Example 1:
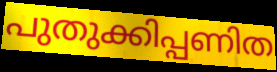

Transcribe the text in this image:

പുതുക്കിപ്പണിത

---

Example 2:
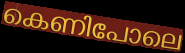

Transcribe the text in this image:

കെണിപോലെ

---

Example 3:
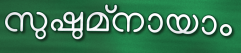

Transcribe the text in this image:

സുഷുമ്നായാം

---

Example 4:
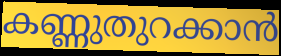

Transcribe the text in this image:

കണ്ണുതുറക്കാൻ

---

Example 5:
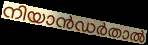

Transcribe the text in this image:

നിയാൻഡർതാൽ